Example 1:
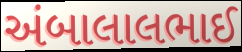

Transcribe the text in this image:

અંબાલાલભાઈ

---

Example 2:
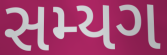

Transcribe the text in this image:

સમ્યગ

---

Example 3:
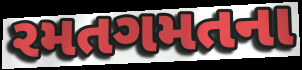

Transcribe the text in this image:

રમતગમતના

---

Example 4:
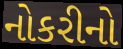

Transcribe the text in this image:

નોકરીનો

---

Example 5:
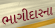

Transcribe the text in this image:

ભાગીદારના